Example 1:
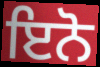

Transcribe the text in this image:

ਇਨੋ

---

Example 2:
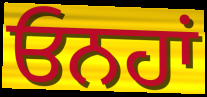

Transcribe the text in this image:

ਓਨਹਾਂ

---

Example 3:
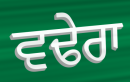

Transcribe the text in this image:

ਵਢੇਰਾ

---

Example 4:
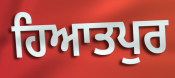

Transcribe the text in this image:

ਹਿਆਤਪੁਰ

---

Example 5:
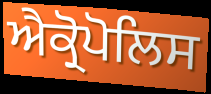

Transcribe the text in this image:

ਐਕ੍ਰੋਪੋਲਿਸ